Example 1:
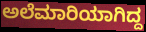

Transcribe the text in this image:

ಅಲೆಮಾರಿಯಾಗಿದ್ದ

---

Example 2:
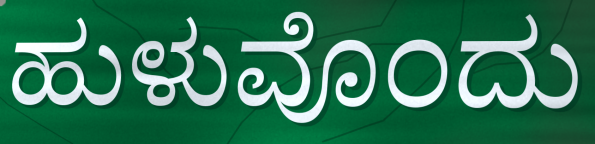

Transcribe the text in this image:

ಹುಳುವೊಂದು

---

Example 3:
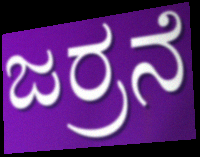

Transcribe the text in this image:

ಜರ್ರನೆ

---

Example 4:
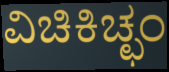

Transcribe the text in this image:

ವಿಚಿಕಿಚ್ಛಂ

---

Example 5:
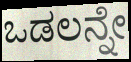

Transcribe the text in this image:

ಒಡಲನ್ನೇ